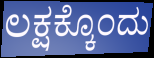
ಲಕ್ಷಕ್ಕೊಂದು